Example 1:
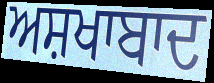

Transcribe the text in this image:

ਅਸ਼ਖਾਬਾਦ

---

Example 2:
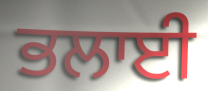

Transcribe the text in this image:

ਭਲਾਈ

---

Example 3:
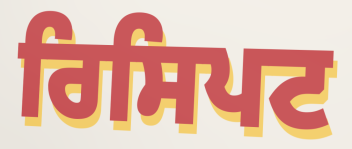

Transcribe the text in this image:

ਰਿਸਿਪਟ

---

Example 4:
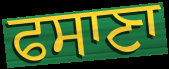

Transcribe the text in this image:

ਫਸਾਣਾ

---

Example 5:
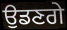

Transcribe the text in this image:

ਉਡਣਗੇ